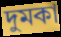
দুমকা